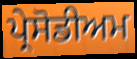
ਪ੍ਰੇਸੋਡੀਅਮ